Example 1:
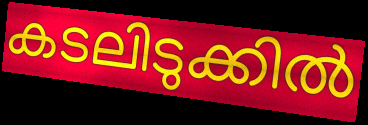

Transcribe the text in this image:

കടലിടുക്കിൽ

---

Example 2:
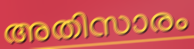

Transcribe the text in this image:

അതിസാരം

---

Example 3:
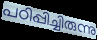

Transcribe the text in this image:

പഠിപ്പിച്ചിരുന്നു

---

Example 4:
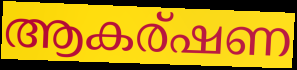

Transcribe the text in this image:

ആകര്ഷണ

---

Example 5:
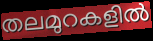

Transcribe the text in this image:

തലമുറകളിൽ